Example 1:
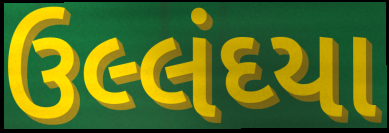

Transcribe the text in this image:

ઉલ્લંઘ્યા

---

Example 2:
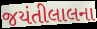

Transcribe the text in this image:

જયંતીલાલના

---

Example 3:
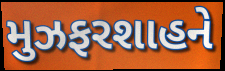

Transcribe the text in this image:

મુઝફરશાહને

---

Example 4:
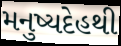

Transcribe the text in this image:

મનુષ્યદેહથી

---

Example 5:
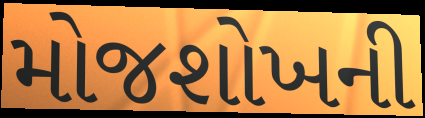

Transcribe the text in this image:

મોજશોખની